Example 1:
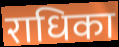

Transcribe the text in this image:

राधिका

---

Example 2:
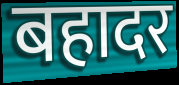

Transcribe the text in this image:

बहादर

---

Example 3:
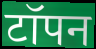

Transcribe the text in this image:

टॉपन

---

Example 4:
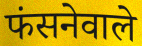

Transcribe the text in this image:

फंसनेवाले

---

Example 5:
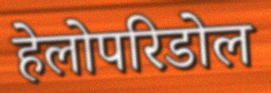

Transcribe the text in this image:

हेलोपरिडोल